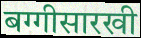
बग्गीसारखी